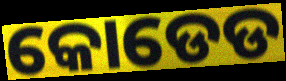
କୋଡେଡ